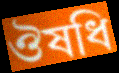
ঔষধি